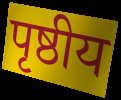
पृष्ठीय